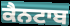
ਕੈਨਟਾਬ